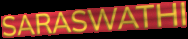
SARASWATHI